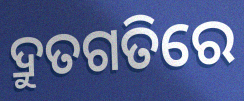
ଦ୍ରୁତଗତିରେ